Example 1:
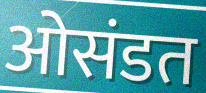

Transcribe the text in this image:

ओसंडत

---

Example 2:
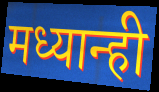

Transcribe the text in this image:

मध्यान्ही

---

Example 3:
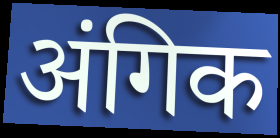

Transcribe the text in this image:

अंगिक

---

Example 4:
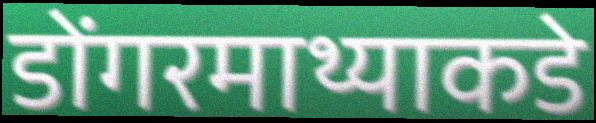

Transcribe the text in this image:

डोंगरमाथ्याकडे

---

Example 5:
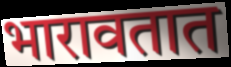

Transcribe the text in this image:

भारावतात